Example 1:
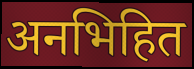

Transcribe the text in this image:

अनभिहित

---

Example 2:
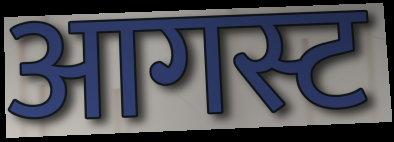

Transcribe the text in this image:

आगस्ट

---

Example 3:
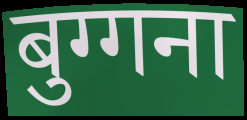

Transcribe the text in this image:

बुग्गना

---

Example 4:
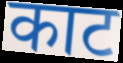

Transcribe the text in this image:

काट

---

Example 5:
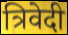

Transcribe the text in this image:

त्रिवेदी